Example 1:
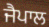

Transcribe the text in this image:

ਜੈਪਾਲ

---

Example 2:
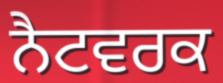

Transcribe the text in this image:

ਨੈਟਵਰਕ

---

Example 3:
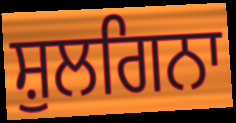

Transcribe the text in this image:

ਸ਼ੁਲਗਿਨਾ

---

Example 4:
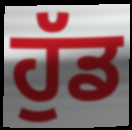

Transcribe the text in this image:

ਹੁੱਡ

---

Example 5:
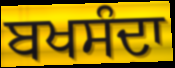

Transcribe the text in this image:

ਬਖਸੰਦਾ